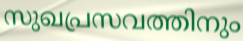
സുഖപ്രസവത്തിനും